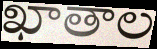
ఖాతాల